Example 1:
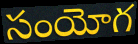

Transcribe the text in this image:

సంయోగ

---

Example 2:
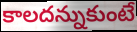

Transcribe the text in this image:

కాలదన్నుకుంటే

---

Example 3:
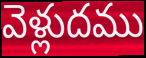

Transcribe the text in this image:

వెళ్లుదము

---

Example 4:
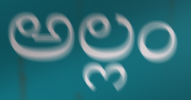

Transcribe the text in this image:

అల్లం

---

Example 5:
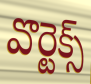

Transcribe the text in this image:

వొర్టెక్స్